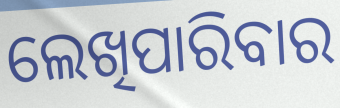
ଲେଖିପାରିବାର